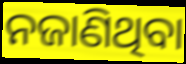
ନଜାଣିଥିବା